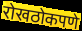
रोखठोकपणे